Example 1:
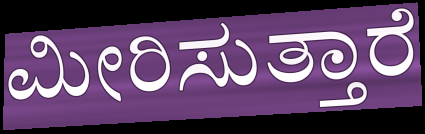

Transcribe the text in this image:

ಮೀರಿಸುತ್ತಾರೆ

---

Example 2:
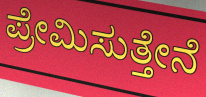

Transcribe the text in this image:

ಪ್ರೇಮಿಸುತ್ತೇನೆ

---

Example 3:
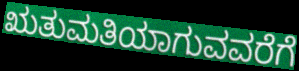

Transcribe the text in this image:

ಋತುಮತಿಯಾಗುವವರೆಗೆ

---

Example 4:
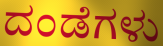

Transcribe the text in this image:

ದಂಡೆಗಳು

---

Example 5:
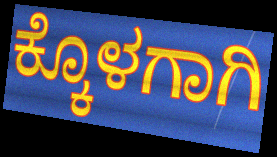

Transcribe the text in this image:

ಕ್ಕೊಳಗಾಗಿ